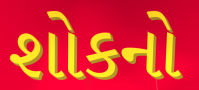
શોકનો